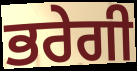
ਭਰੇਗੀ